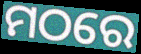
ମଠରେ